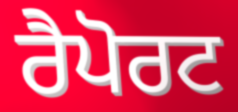
ਰੈਪੋਰਟ